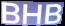
BHB